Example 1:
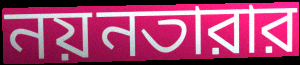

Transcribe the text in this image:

নয়নতারার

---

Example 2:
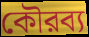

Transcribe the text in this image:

কৌরব্য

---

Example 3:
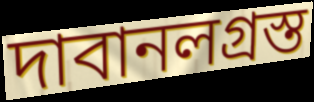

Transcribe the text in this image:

দাবানলগ্রস্ত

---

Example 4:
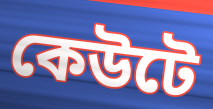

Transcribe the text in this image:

কেউটে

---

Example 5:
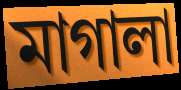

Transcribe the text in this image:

মাগালা